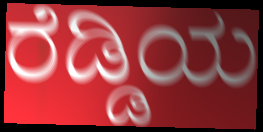
ರೆಡ್ಡಿಯ